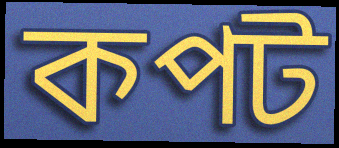
কপট